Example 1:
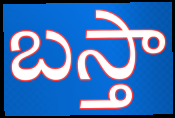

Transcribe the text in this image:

బస్తా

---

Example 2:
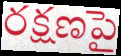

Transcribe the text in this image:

రక్షణపై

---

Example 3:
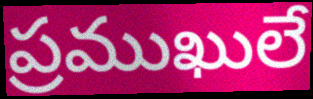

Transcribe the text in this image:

ప్రముఖులే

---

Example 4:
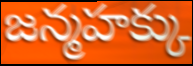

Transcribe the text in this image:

జన్మహక్కు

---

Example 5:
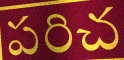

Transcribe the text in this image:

పరిచ